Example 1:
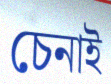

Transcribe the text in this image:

চেনাই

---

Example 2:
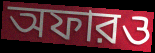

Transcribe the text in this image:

অফারও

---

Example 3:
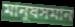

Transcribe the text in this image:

মানুষসমান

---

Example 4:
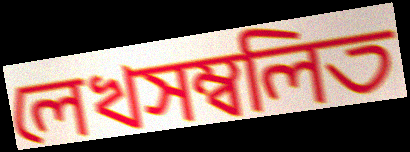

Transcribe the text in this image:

লেখসম্বলিত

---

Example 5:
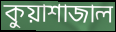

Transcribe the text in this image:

কুয়াশাজাল